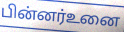
பின்னர்உனை